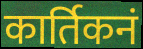
कार्तिकनं